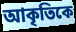
আকৃতিকে